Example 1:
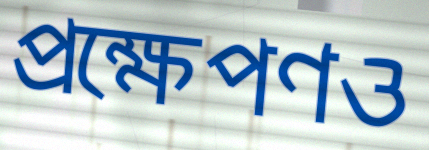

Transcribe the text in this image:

প্রক্ষেপণও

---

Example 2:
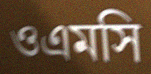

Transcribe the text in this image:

ওএমসি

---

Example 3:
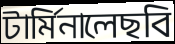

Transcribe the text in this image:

টার্মিনালেছবি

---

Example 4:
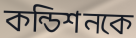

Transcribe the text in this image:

কন্ডিশনকে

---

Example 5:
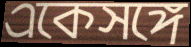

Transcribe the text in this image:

একেসঙ্গে